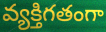
వ్యక్తిగతంగా